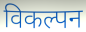
विकल्पन